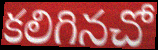
కలిగినచో